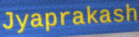
Jyaprakash